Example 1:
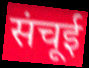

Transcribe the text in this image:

संचूई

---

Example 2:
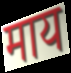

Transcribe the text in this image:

माय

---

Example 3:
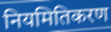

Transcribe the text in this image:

नियमितिकरण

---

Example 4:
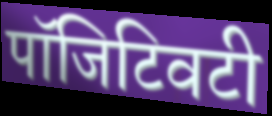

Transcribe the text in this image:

पॉजिटिवटी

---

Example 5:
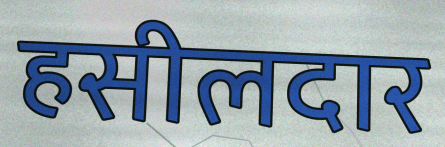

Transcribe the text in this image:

हसीलदार